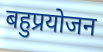
बहुप्रयोजन